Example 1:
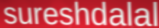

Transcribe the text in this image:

sureshdalal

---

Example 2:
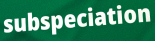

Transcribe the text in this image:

subspeciation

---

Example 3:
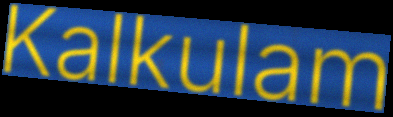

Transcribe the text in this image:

Kalkulam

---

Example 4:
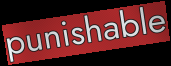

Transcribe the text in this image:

punishable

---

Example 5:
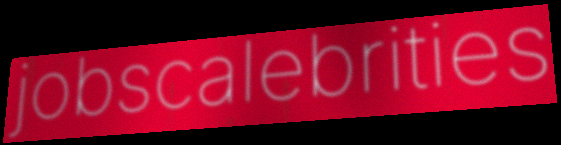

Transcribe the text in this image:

jobscalebrities